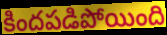
కిందపడిపోయింది